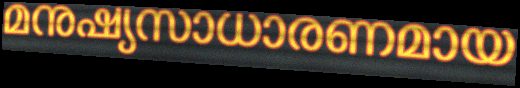
മനുഷ്യസാധാരണമായ